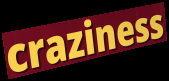
craziness